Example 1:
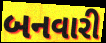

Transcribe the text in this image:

બનવારી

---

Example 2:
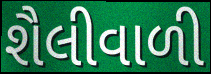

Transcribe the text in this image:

શૈલીવાળી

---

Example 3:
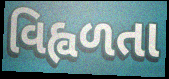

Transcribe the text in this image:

વિહ્વળતા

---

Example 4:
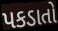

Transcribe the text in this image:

પકડાતો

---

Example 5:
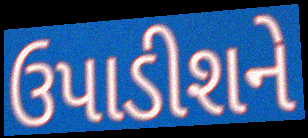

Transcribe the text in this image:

ઉપાડીશને